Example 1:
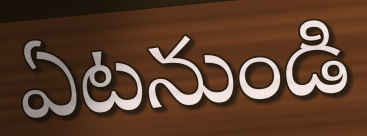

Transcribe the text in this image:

ఏటనుండి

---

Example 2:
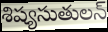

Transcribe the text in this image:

శిష్యసుతులన్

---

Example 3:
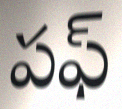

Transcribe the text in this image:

పఫ్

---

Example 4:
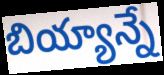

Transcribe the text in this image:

బియ్యాన్నే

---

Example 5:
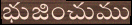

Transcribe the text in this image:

భుజించుము